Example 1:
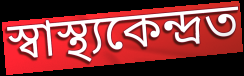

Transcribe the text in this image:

স্বাস্থ্যকেন্দ্ৰত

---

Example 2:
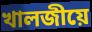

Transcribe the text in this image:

খালজীয়ে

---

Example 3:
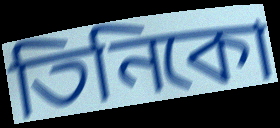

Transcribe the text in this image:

তিনিকো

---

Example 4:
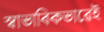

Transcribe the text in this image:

স্বাভাবিকভাৱেই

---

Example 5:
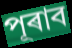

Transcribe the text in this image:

পূৰাব